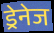
ड्रेनेज